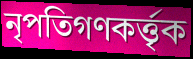
নৃপতিগণকর্ত্তৃক